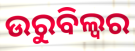
ଉରୁବିଲ୍ଵର